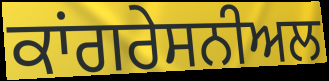
ਕਾਂਗਰੇਸਨੀਅਲ